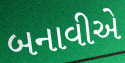
બનાવીએ